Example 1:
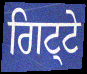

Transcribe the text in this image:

ਗਿਟ੍ਟੇ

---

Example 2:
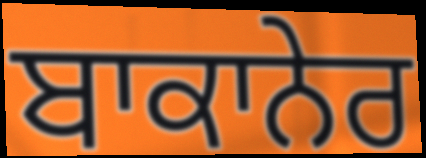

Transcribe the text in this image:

ਬਾਕਾਨੇਰ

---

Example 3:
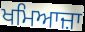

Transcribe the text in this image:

ਖਮਿਆਜ਼ਾ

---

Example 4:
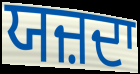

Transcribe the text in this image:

ਯਜ਼ਦਾ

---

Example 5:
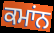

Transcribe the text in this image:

ਕਮਾਂਨ